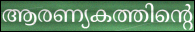
ആരണ്യകത്തിന്റെ